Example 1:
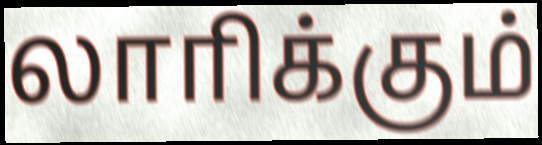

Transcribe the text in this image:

லாரிக்கும்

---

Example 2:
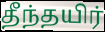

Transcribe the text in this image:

தீந்தயிர்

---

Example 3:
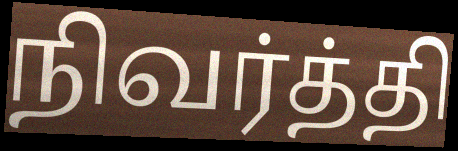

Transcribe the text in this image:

நிவர்த்தி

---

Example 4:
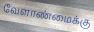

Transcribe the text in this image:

வேளாண்மைக்கு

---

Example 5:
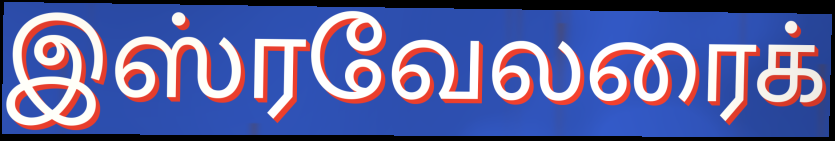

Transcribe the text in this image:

இஸ்ரவேலரைக்